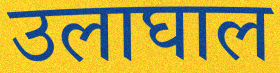
उलाघाल